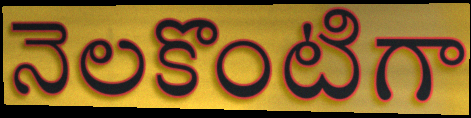
నెలకొంటిగా